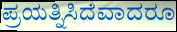
ಪ್ರಯತ್ನಿಸಿದೆವಾದರೂ